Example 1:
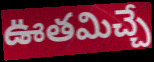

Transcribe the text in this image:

ఊతమిచ్చే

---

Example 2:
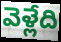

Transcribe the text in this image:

వెళ్లేది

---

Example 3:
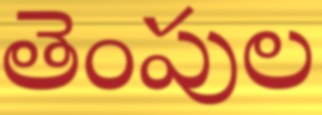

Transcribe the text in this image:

తెంపుల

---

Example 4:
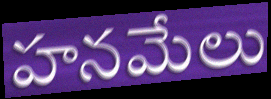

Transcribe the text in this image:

హనమేలు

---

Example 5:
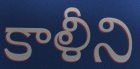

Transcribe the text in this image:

కాళీని